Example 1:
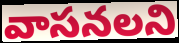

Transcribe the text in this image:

వాసనలని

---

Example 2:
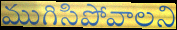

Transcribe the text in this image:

ముగిసిపోవాలని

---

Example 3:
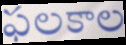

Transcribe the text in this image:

ఫలకాల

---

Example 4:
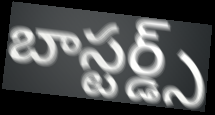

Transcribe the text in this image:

బాస్టర్డ్స్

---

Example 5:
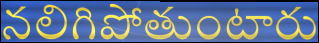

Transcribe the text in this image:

నలిగిపోతుంటారు